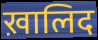
ख़ालिद